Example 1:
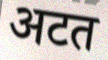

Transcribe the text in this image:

अटत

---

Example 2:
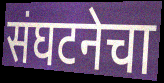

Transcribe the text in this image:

संघटनेचा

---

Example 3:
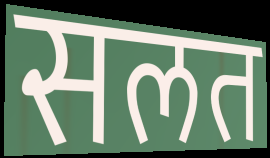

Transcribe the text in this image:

सलत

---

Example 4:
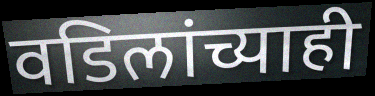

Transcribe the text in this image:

वडिलांच्याही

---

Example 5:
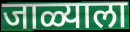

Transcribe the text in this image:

जाळ्याला